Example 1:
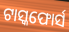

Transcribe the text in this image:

ଟାସ୍କଫୋର୍ସ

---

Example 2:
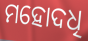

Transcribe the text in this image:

ମହୋଦଧି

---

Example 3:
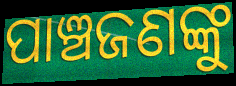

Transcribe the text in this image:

ପାଞ୍ଚଜଣଙ୍କୁ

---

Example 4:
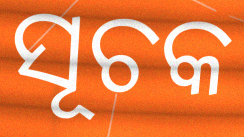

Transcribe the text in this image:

ସୂଚକ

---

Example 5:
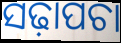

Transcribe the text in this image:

ସଢ଼ାପଚା